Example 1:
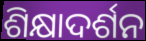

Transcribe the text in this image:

ଶିକ୍ଷାଦର୍ଶନ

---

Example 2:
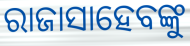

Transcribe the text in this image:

ରାଜାସାହେବଙ୍କୁ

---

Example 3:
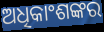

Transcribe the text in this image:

ଅଧିକାଂଶଙ୍କର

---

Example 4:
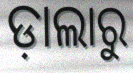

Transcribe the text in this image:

ଡ଼ାଲାରୁ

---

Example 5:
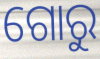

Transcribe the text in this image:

ଗୋରୁ